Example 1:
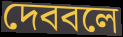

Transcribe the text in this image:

দেববলে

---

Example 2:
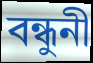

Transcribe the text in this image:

বন্ধুনী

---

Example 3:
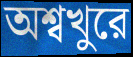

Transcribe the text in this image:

অশ্বখুরে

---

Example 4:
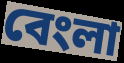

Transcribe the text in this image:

বেংলা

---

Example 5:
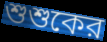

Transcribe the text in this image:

শুশুকের